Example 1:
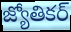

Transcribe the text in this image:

జ్యోతికర్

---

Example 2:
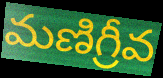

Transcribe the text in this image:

మణిగ్రీవ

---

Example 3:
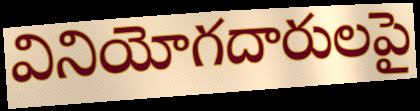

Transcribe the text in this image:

వినియోగదారులపై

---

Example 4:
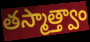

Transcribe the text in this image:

తస్మాత్త్వాం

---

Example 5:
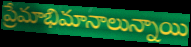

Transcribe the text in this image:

ప్రేమాభిమానాలున్నాయి